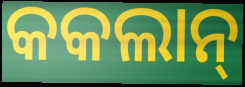
କକଲାନ୍